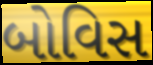
બોવિસ